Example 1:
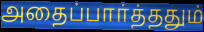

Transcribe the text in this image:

அதைப்பார்த்ததும்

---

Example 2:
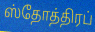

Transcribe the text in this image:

ஸ்தோத்திரப்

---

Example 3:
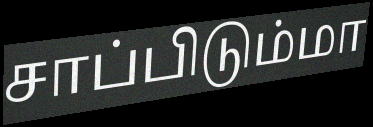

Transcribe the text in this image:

சாப்பிடும்மா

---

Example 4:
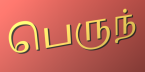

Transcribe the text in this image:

பெருந்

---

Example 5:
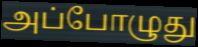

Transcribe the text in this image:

அப்போழுது